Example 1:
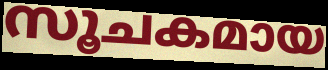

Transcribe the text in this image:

സൂചകമായ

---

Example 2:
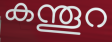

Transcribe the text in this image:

കന്തൂറ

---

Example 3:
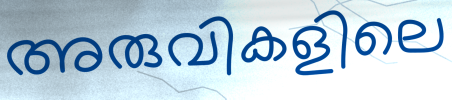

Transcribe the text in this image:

അരുവികളിലെ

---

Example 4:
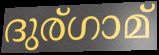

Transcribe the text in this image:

ദുര്ഗാമ്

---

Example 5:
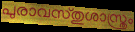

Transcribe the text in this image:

പുരാവസ്തുശാസ്ത്രം